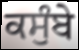
ਕਸੁੰਬੇ